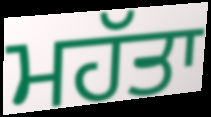
ਮਹੱਤਾ